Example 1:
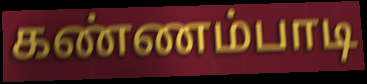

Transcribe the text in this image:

கண்ணம்பாடி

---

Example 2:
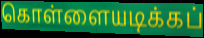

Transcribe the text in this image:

கொள்ளையடிக்கப்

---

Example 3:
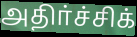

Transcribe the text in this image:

அதிர்ச்சிக்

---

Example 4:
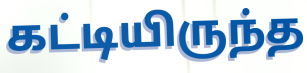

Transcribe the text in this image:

கட்டியிருந்த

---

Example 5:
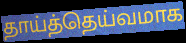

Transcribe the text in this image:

தாய்த்தெய்வமாக